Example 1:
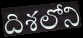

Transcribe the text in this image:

దిశలోని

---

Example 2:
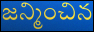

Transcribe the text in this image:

జన్మించిన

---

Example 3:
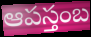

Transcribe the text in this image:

ఆపస్తంబ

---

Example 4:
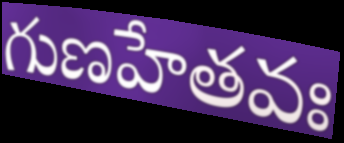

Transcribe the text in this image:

గుణహేతవః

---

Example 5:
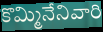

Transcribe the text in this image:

కొమ్మినేనివారి